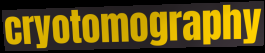
cryotomography